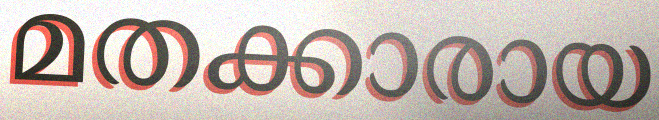
മതക്കാരായ